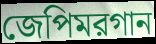
জেপিমরগান